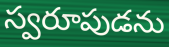
స్వరూపుడను